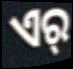
ଏର୍